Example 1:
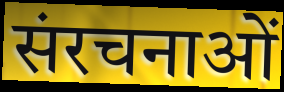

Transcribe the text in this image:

संरचनाओं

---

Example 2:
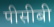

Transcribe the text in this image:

पीसीबी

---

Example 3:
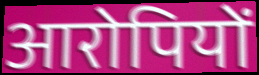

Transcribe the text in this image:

आरोपियों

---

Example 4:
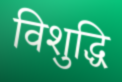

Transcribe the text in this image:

विशुद्धि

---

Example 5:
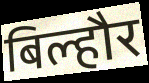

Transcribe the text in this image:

बिल्हौर